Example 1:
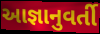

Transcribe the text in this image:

આજ્ઞાનુવર્તી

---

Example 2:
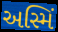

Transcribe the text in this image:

અસ્મિં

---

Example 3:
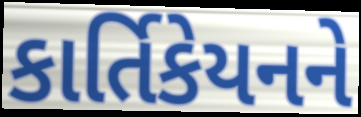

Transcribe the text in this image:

કાર્તિકેયનને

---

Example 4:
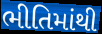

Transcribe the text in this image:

ભીતિમાંથી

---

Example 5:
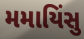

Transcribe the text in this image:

મમાયિંસુ